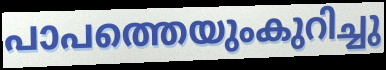
പാപത്തെയുംകുറിച്ചു